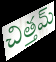
చిత్తమ్